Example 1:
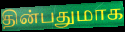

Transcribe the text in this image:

தின்பதுமாக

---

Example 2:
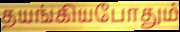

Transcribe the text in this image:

தயங்கியபோதும்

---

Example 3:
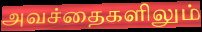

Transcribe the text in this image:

அவச்தைகளிலும்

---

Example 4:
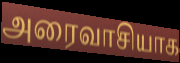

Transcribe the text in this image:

அரைவாசியாக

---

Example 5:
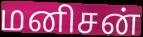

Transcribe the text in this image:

மனிசன்